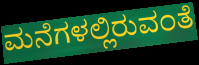
ಮನೆಗಳಲ್ಲಿರುವಂತೆ